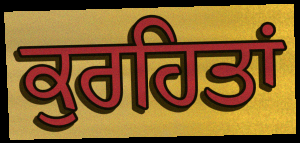
ਕੁਰਹਿਤਾਂ